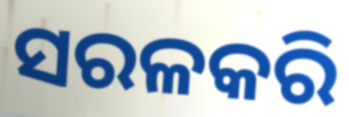
ସରଳକରି